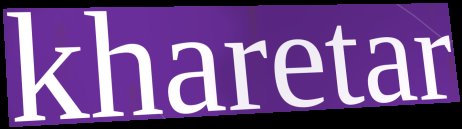
kharetar